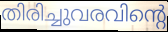
തിരിച്ചുവരവിന്റെ